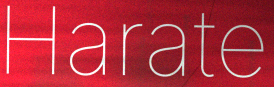
Harate